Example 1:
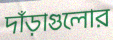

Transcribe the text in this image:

দাঁড়াগুলোর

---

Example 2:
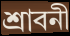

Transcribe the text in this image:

শ্রাবনী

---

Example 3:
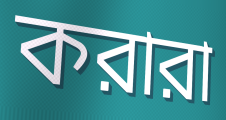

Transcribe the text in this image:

করারা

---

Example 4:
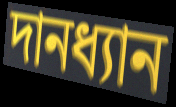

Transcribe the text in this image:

দানধ্যান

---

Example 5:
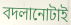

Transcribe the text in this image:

বদলানোটাই